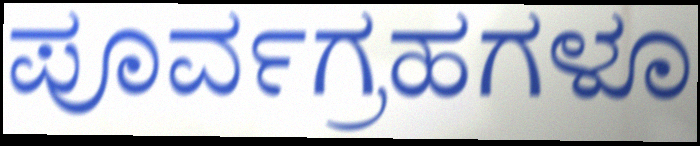
ಪೂರ್ವಗ್ರಹಗಳೂ